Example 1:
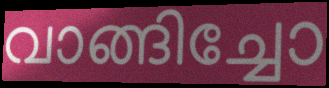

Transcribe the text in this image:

വാങ്ങിച്ചോ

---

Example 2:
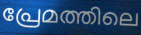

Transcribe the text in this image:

പ്രേമത്തിലെ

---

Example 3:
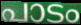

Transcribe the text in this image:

പാടം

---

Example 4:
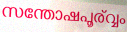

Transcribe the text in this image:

സന്തോഷപൂര്വ്വം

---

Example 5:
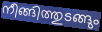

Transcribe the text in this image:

നീങ്ങിത്തുടങ്ങും